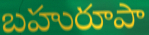
బహురూపా